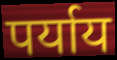
पर्याय